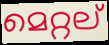
മെറ്റല്